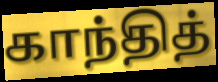
காந்தித்